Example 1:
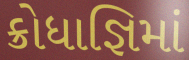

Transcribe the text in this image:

ક્રોધાજ્ઞિમાં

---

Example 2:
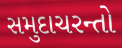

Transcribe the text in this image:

સમુદાચરન્તો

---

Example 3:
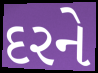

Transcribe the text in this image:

દરને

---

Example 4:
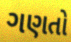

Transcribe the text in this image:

ગણતો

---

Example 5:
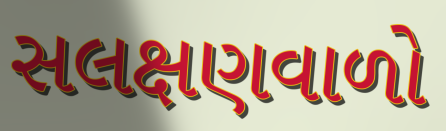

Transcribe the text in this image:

સલક્ષણવાળો